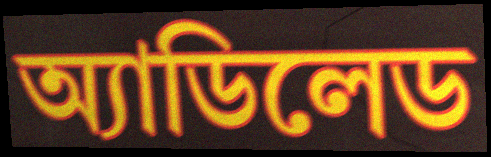
অ্যাডিলেড